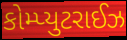
કોમ્પ્યુટરાઈઝ